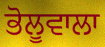
ਭੋਲੂਵਾਲਾ